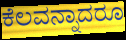
ಕೆಲವನ್ನಾದರೂ